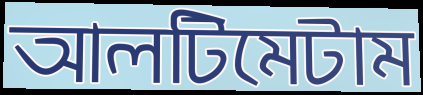
আলটিমেটাম